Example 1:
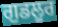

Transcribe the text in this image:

ਗੁਡਲੂਰ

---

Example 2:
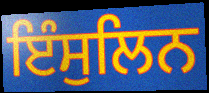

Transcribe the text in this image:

ਇੰਸੁਲਿਨ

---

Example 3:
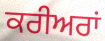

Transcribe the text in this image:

ਕਰੀਅਰਾਂ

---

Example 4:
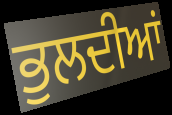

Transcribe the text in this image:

ਭੁਲਦੀਆਂ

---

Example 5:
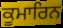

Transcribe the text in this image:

ਕੂਮਾਰਿਨ